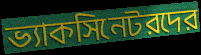
ভ্যাকসিনেটরদের